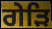
ਗੇੜਿ